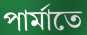
পার্মাতে